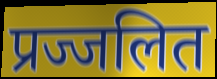
प्रज्जलित